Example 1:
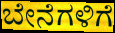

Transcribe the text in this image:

ಬೇನೆಗಳಿಗೆ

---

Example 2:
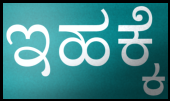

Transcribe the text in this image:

ಇಹಕ್ಕೆ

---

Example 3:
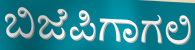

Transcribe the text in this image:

ಬಿಜೆಪಿಗಾಗಲಿ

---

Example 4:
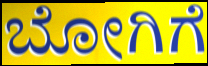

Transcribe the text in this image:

ಬೋಗಿಗೆ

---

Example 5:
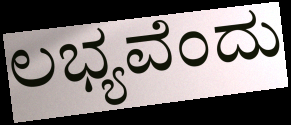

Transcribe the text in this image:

ಲಭ್ಯವೆಂದು